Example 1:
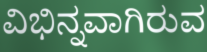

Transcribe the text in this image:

ವಿಭಿನ್ನವಾಗಿರುವ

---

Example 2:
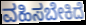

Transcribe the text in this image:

ವಹಿಸಬೇಕಿದೆ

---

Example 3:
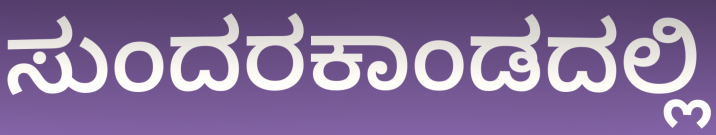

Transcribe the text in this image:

ಸುಂದರಕಾಂಡದಲ್ಲಿ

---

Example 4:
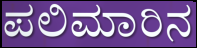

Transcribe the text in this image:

ಪಲಿಮಾರಿನ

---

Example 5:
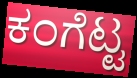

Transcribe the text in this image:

ಕಂಗೆಟ್ಟ